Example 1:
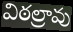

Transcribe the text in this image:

విఠల్రావు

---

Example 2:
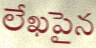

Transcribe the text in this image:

లేఖపైన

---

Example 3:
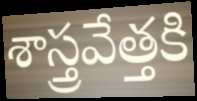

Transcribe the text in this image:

శాస్త్రవేత్తకి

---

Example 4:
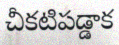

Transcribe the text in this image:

చీకటిపడ్డాక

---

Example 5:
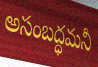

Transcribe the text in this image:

అసంబద్ధమనీ